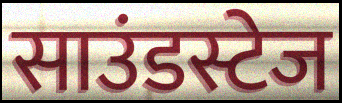
साउंडस्टेज